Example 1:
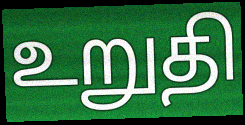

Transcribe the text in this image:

உறுதி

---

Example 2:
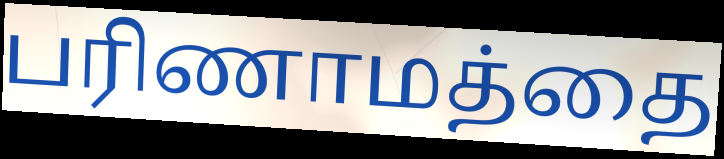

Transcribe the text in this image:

பரிணாமத்தை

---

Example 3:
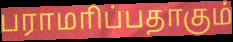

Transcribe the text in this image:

பராமரிப்பதாகும்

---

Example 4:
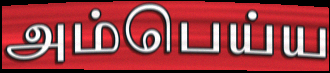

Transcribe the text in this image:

அம்பெய்ய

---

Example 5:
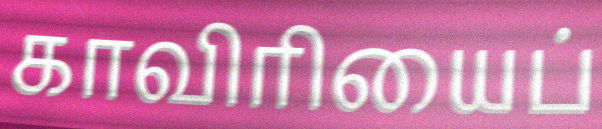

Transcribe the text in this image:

காவிரியைப்